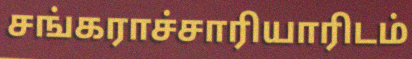
சங்கராச்சாரியாரிடம்